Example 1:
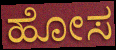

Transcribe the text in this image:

ಹೋಸ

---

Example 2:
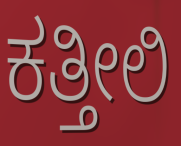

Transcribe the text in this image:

ಕತ್ತೀಲಿ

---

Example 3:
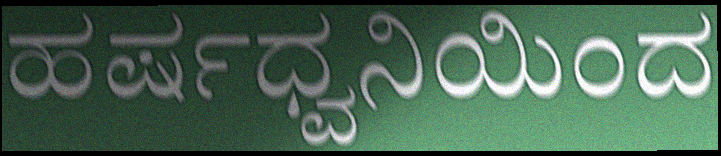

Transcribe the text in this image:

ಹರ್ಷಧ್ವನಿಯಿಂದ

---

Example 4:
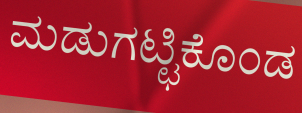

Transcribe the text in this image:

ಮಡುಗಟ್ಟಿಕೊಂಡ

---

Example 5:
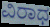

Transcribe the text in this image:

ವಿರಾಧ